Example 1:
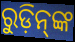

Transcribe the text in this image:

ରୁଡ଼ିନ୍‌ଙ୍କ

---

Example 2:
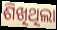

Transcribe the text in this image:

ଶିଖିଥିଲା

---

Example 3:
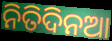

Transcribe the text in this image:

ନିତିଦିନଆ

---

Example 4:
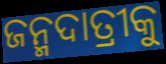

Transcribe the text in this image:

ଜନ୍ମଦାତ୍ରୀକୁ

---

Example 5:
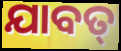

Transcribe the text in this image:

ଯାବତ୍